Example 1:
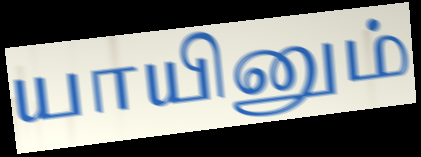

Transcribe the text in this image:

யாயினும்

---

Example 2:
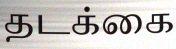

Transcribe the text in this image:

தடக்கை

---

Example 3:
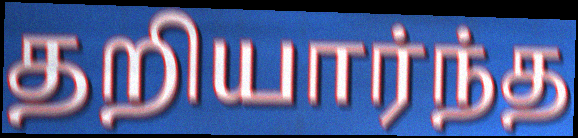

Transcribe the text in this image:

தறியார்ந்த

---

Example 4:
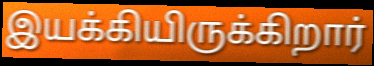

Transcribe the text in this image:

இயக்கியிருக்கிறார்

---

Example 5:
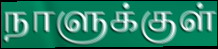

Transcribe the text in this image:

நாளுக்குள்